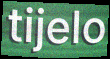
tijelo